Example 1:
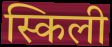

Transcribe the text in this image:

स्किली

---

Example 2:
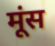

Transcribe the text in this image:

मूंस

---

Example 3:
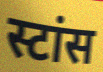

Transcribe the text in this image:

स्टांस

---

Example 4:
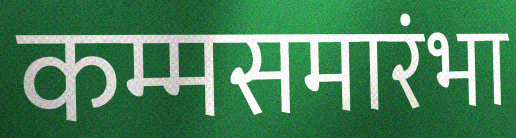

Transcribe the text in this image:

कम्मसमारंभा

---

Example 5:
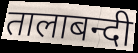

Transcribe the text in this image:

तालाबन्दी